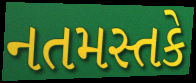
નતમસ્તકે